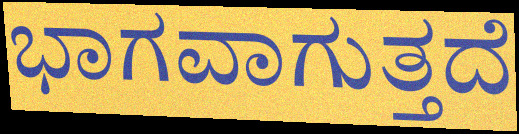
ಭಾಗವಾಗುತ್ತದೆ